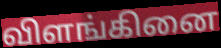
விளங்கினை